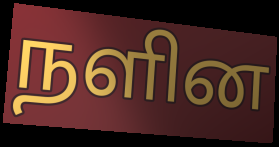
நளின